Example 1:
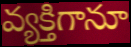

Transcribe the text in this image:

వ్యక్తిగానూ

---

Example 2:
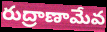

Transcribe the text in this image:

రుద్రాణామేవ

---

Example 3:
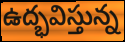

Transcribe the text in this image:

ఉద్భవిస్తున్న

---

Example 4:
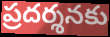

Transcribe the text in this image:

ప్రదర్శనకు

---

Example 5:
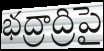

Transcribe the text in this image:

భద్రాద్రిపై